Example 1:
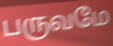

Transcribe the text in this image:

பருவமே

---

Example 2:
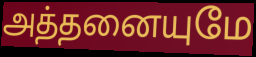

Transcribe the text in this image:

அத்தனையுமே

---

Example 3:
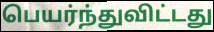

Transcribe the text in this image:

பெயர்ந்துவிட்டது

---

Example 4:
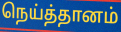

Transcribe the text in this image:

நெய்த்தானம்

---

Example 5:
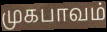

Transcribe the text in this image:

முகபாவம்